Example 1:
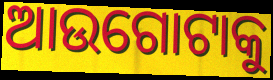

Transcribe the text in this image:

ଆଉଗୋଟାକୁ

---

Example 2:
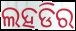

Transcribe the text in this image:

ଲହଡିର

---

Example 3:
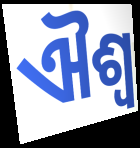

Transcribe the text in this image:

ଐଶ୍ୱ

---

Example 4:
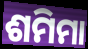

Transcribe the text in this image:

ଶମିମା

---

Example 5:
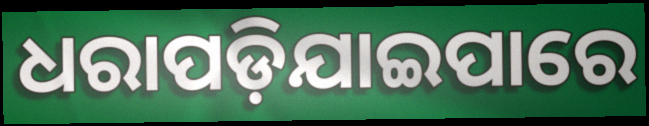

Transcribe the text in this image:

ଧରାପଡ଼ିଯାଇପାରେ